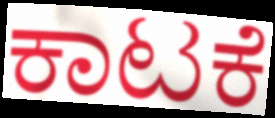
ಕಾಟಕೆ